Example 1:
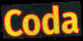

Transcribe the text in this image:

Coda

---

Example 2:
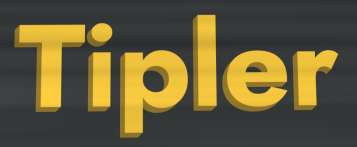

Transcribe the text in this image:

Tipler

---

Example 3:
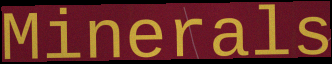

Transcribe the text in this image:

Minerals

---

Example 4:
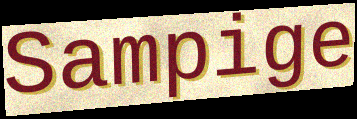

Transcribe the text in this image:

Sampige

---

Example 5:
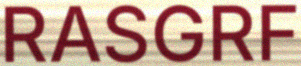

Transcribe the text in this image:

RASGRF